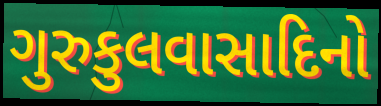
ગુરુકુલવાસાદિનો